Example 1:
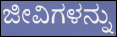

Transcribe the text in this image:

ಜೀವಿಗಳನ್ನು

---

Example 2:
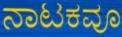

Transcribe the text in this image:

ನಾಟಕವೂ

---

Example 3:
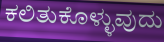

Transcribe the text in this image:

ಕಲಿತುಕೊಳ್ಳುವುದು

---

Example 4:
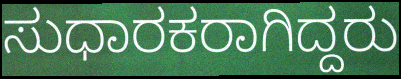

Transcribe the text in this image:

ಸುಧಾರಕರಾಗಿದ್ದರು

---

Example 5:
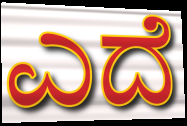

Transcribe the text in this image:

ಎದೆ